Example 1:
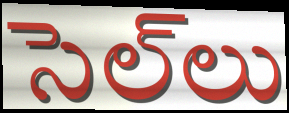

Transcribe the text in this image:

సెల్‌లు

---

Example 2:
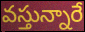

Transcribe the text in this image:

వస్తున్నారే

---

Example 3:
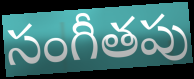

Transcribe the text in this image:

సంగీతపు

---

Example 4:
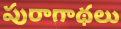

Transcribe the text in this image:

పురాగాథలు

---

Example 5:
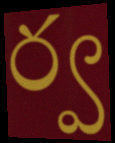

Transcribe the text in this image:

ర్వ